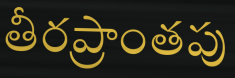
తీరప్రాంతపు